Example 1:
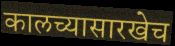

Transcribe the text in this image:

कालच्यासारखेच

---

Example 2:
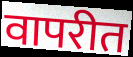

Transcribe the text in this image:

वापरीत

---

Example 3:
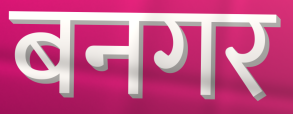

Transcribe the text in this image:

बनगर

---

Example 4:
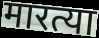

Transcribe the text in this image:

मारत्या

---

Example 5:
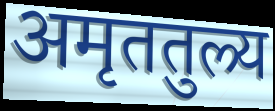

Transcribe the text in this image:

अमृततुल्य